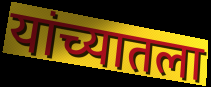
यांच्यातला